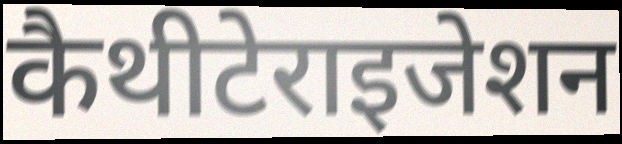
कैथीटेराइजेशन